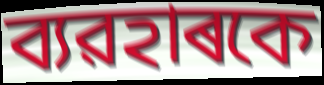
ব্যৱহাৰকে